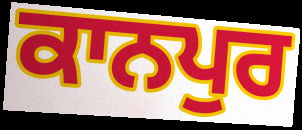
ਕਾਨਪੁਰ